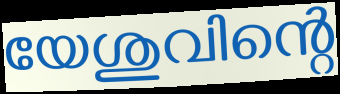
യേശുവിന്റെ